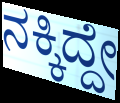
ನಕ್ಕಿದ್ದೇ